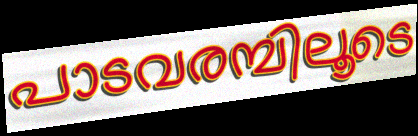
പാടവരമ്പിലൂടെ